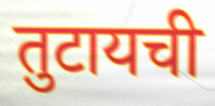
तुटायची